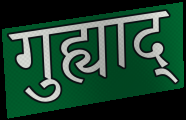
गुह्याद्